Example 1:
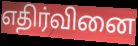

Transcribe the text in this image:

எதிர்வினை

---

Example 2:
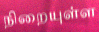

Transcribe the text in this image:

நிறையுள்ள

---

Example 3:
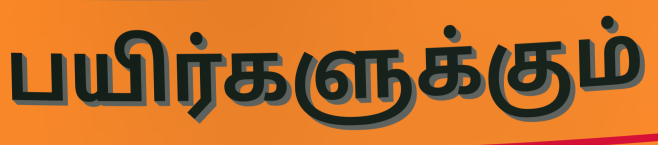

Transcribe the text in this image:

பயிர்களுக்கும்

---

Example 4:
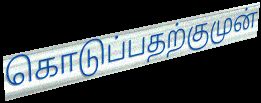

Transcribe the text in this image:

கொடுப்பதற்குமுன்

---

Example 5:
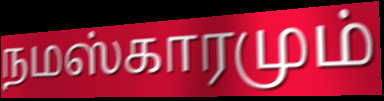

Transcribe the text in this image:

நமஸ்காரமும்